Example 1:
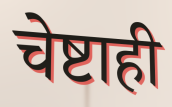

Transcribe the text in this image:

चेष्टाही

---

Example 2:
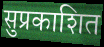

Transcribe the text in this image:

सुप्रकाशित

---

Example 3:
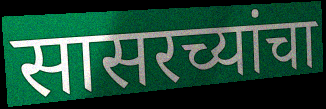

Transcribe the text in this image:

सासरच्यांचा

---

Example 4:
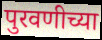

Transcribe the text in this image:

पुरवणीच्या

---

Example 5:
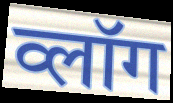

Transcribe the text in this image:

व्लॉग